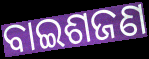
ବାଇଶଜଣ